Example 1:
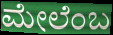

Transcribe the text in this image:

ಮೇಲೆಂಬ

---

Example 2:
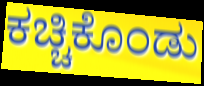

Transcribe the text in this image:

ಕಚ್ಚಿಕೊಂಡು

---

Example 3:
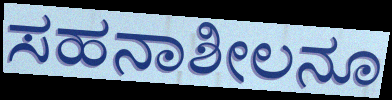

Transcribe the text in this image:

ಸಹನಾಶೀಲನೂ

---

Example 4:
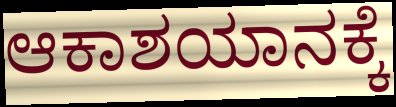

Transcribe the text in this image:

ಆಕಾಶಯಾನಕ್ಕೆ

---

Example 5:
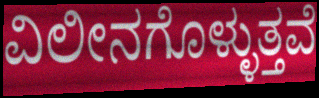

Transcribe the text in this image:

ವಿಲೀನಗೊಳ್ಳುತ್ತವೆ